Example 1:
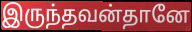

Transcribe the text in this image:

இருந்தவன்தானே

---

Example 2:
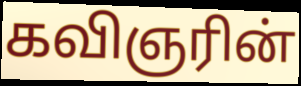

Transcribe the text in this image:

கவிஞரின்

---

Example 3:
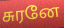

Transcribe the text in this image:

சுரனே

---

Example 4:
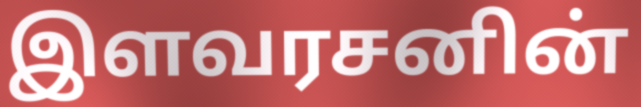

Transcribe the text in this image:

இளவரசனின்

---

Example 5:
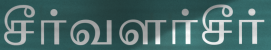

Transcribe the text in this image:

சீர்வளர்சீர்